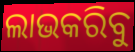
ଲାଭକରିବୁ